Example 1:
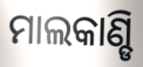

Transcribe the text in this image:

ମାଲକାଣ୍ଡି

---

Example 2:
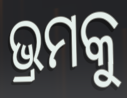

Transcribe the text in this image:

ଭ୍ରମକୁ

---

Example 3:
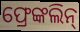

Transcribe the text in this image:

ଫ୍ରେଙ୍କଲିନ୍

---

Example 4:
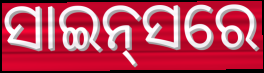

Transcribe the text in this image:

ସାଇନ୍‌ସରେ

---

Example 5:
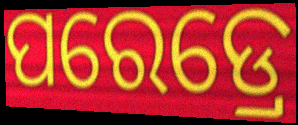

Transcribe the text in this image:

ପରେଡ୍ରେ